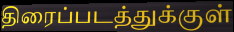
திரைப்படத்துக்குள்